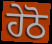
ਹੇਠੋ